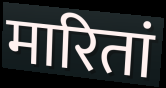
मारितां